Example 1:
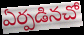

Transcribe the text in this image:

ఏర్పడినచో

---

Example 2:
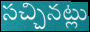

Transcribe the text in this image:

సచ్చినట్లు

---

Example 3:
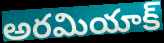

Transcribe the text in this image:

అరమియాక్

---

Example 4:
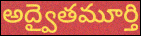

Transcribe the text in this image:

అద్వైతమూర్తి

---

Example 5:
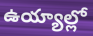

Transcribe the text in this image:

ఉయ్యాల్లో